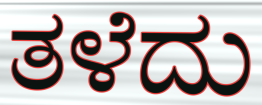
ತಳೆದು